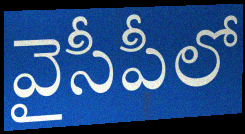
వైసీపీలో